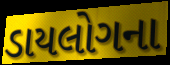
ડાયલોગના